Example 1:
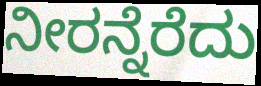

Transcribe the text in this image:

ನೀರನ್ನೆರೆದು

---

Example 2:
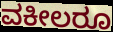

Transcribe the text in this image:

ವಕೀಲರೂ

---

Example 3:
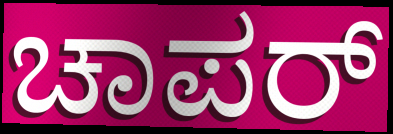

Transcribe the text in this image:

ಚಾಪರ್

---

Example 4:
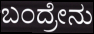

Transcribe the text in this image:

ಬಂದ್ರೇನು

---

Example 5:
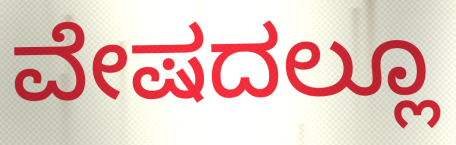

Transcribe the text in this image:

ವೇಷದಲ್ಲೂ